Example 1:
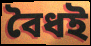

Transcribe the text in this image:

বৈধই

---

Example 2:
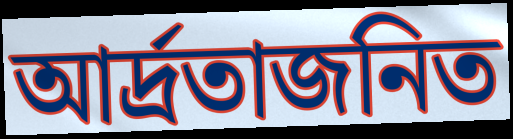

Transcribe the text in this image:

আর্দ্রতাজনিত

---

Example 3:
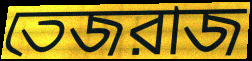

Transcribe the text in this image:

তেজরাজ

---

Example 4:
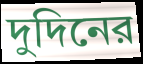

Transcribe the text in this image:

দুদিনের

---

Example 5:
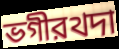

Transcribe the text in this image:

ভগীরথদা